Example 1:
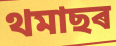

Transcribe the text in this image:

থমাছৰ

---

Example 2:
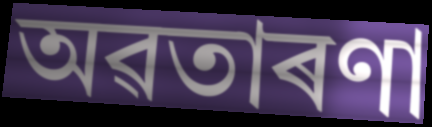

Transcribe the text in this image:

অৱতাৰণা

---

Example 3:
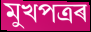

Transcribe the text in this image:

মুখপত্ৰৰ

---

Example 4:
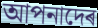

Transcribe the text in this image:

আপনাদেৰ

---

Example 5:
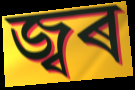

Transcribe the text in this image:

জ্বৰ